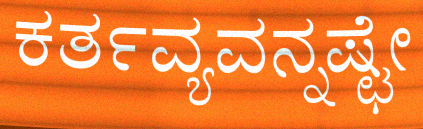
ಕರ್ತವ್ಯವನ್ನಷ್ಟೇ